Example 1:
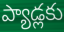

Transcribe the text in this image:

ప్యాడ్లకు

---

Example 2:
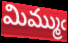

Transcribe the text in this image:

మిమ్ముఁ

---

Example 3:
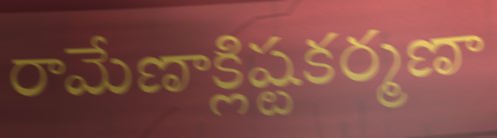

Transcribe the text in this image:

రామేణాక్లిష్టకర్మణా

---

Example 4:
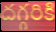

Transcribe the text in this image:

దగ్గరికి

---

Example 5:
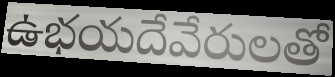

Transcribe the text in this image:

ఉభయదేవేరులతో